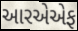
આરએએફ